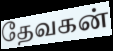
தேவகன்